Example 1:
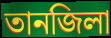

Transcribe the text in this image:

তানজিলা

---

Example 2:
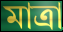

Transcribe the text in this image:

মাত্রা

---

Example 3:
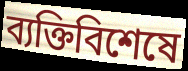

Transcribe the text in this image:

ব্যক্তিবিশেষে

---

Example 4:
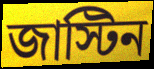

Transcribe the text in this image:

জাস্টিন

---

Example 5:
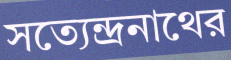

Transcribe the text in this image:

সত্যেন্দ্রনাথের